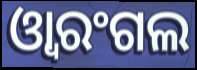
ଓ୍ୱାରଂଗଲ